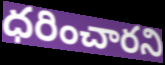
ధరించారని